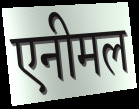
एनीमल